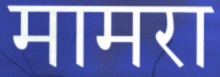
मामरा